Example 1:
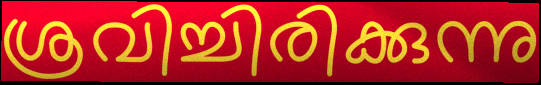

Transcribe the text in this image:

ശ്രവിച്ചിരിക്കുന്നു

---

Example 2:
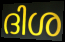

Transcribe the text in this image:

ദിശ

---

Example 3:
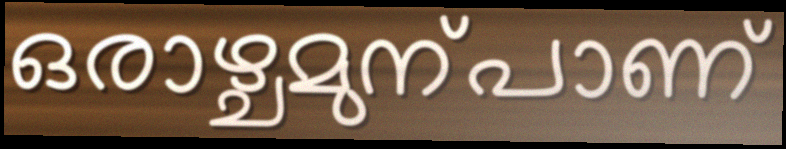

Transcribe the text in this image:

ഒരാഴ്ചമുന്പാണ്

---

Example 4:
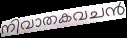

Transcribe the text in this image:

നിവാതകവചൻ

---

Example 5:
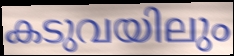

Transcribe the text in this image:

കടുവയിലും